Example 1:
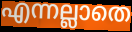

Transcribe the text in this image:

എന്നല്ലാതെ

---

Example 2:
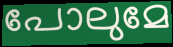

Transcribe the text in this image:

പോലുമേ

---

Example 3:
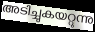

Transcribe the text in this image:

അടിച്ചുകയറ്റുന്നു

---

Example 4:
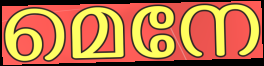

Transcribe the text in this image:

മെനേ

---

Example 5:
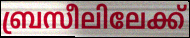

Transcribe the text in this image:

ബ്രസീലിലേക്ക്